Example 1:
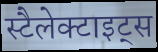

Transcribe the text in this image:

स्टैलेक्टाइट्स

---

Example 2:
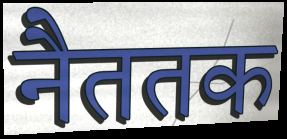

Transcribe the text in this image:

नैततक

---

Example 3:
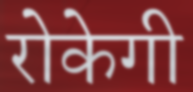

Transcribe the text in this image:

रोकेगी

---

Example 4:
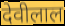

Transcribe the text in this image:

देवीलाल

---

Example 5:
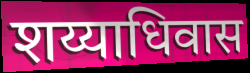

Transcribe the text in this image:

शय्याधिवास